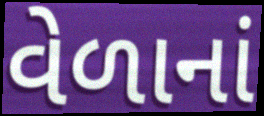
વેળાનાં